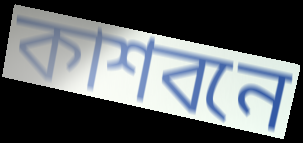
কাশবনে